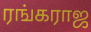
ரங்கராஜ